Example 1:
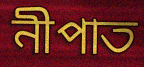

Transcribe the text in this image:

নীপাত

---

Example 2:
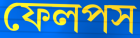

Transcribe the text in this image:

ফেলপস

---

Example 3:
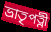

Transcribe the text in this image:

ভ্রাতৃপত্নী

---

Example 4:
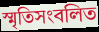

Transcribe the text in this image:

স্মৃতিসংবলিত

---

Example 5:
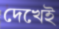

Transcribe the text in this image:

দেখেই